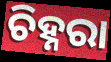
ଚିହ୍ନରା